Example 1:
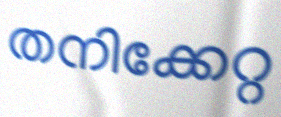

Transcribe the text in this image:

തനിക്കേറ്റ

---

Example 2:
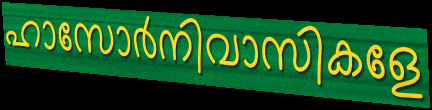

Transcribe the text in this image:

ഹാസോർനിവാസികളേ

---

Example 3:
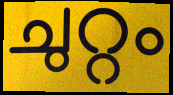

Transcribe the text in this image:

ചുറ്റം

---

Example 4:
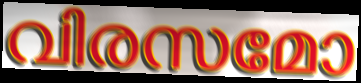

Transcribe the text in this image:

വിരസമോ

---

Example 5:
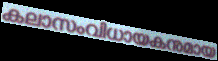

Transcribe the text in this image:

കലാസംവിധായകനുമായ